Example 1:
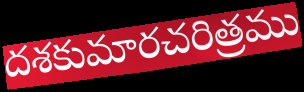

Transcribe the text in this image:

దశకుమారచరిత్రము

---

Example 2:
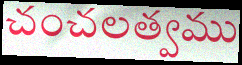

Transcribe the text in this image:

చంచలత్వము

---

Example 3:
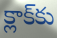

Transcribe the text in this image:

క్లాక్‌కు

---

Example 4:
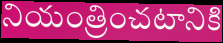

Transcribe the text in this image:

నియంత్రించటానికి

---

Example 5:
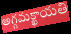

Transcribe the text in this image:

అగ్గమక్ఖాయతి